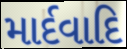
માર્દવાદિ